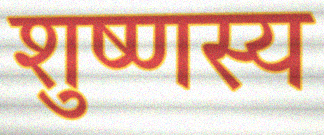
शुष्णस्य